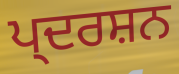
ਪ੍ਦਰਸ਼ਨ